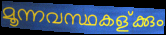
മൂന്നവസ്ഥകള്ക്കും